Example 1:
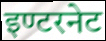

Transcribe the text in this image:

इण्टरनेट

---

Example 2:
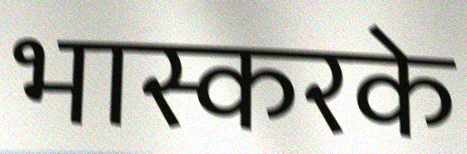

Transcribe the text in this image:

भास्करके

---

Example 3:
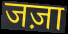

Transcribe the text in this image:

जज़ा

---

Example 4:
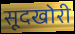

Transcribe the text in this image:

सूदखोरी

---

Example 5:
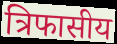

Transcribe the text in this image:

त्रिफासीय